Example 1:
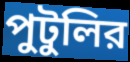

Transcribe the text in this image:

পুটুলির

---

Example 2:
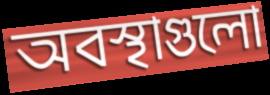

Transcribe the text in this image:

অবস্থাগুলো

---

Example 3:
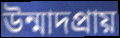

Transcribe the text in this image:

উন্মাদপ্রায়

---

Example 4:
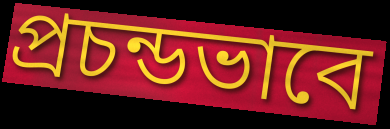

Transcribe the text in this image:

প্রচন্ডভাবে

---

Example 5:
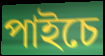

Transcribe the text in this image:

পাইচে